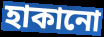
হাকানো